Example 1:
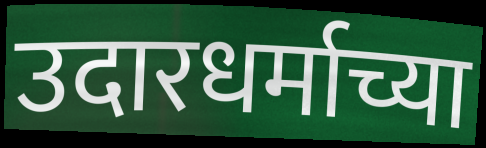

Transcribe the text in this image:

उदारधर्माच्या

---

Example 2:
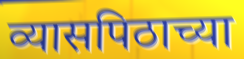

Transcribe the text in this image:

व्यासपिठाच्या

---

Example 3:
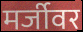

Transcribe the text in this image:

मर्जीवर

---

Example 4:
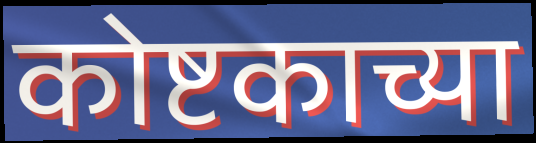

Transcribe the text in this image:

कोष्टकाच्या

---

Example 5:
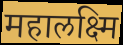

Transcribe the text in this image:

महालक्ष्मि